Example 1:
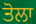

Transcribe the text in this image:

ਤੋਲਾ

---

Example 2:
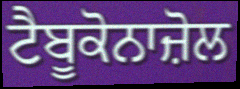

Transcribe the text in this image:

ਟੈਬੂਕੋਨਾਜ਼ੋਲ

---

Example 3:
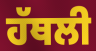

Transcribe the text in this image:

ਹੱਥਲੀ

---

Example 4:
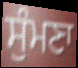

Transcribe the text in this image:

ਸੁੰਮਣਾ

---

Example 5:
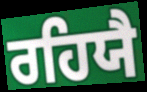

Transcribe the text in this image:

ਰਹਿਯੈ